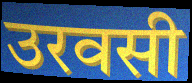
उरवसी